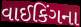
વાઈકિંગના